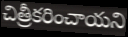
చిత్రీకరించాయని